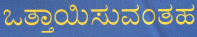
ಒತ್ತಾಯಿಸುವಂತಹ